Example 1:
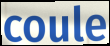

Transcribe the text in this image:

coule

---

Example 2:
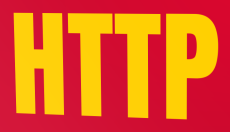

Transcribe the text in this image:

HTTP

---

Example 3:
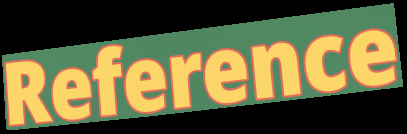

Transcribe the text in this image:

Reference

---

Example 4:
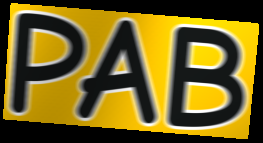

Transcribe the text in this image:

PAB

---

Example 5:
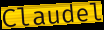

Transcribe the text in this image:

Claudel